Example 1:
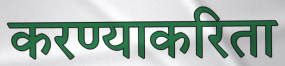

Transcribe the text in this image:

करण्याकरिता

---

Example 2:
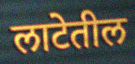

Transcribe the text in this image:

लाटेतील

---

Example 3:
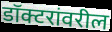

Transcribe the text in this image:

डॉक्टरांवरील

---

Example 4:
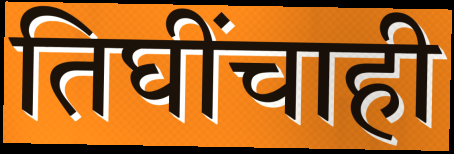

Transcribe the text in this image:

तिघींचाही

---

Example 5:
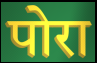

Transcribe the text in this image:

पोरा